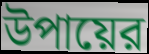
উপায়ের